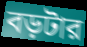
বড়টার